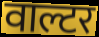
वाल्टर